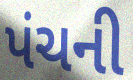
પંચની